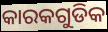
କାରକଗୁଡିକ